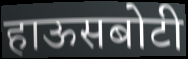
हाऊसबोटी